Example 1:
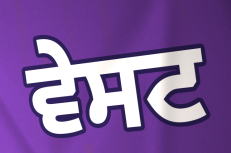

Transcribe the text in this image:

ਵੇਸਟ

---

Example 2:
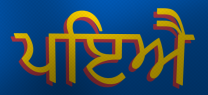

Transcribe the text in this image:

ਪਇਐ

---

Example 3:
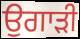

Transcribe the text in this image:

ਉਗਾੜੀ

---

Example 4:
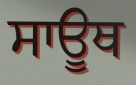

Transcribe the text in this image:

ਸਾਊਥ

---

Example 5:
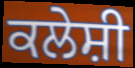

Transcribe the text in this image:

ਕਲੇਸ਼ੀ